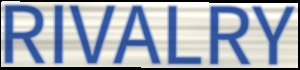
RIVALRY